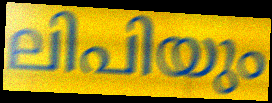
ലിപിയും